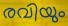
രവിയും